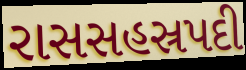
રાસસહસ્રપદી